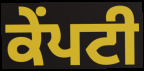
ਕੇਂਪਟੀ